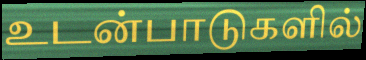
உடன்பாடுகளில்